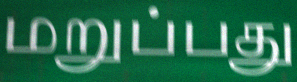
மறுப்பது